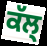
ਕੱਲ੍